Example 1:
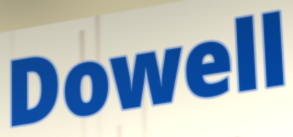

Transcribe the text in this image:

Dowell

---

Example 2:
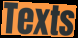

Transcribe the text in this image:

Texts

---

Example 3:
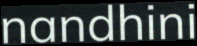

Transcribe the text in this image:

nandhini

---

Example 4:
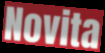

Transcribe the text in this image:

Novita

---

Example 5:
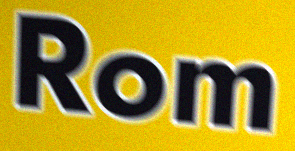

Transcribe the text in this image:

Rom